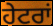
ਹੇਟਰਾਂ